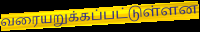
வரையறுக்கப்பட்டுள்ளன